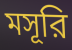
মসূরি